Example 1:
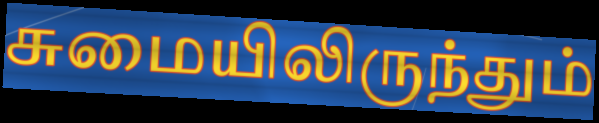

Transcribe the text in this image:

சுமையிலிருந்தும்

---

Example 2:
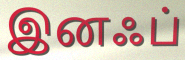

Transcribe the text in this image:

இனஃப்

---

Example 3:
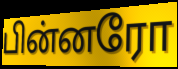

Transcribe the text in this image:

பின்னரோ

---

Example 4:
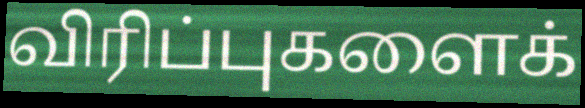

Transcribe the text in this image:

விரிப்புகளைக்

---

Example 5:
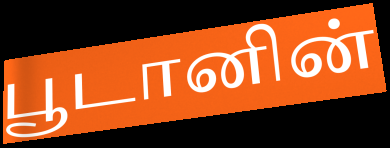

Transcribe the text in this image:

பூடானின்